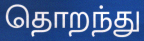
தொறந்து